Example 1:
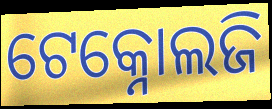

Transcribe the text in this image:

ଟେକ୍ନୋଲଜି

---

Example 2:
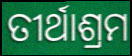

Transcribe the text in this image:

ତୀର୍ଥାଶ୍ରମ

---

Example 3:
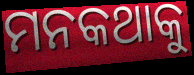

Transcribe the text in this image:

ମନକଥାକୁ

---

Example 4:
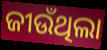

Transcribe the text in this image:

ଜୀଉଁଥିଲା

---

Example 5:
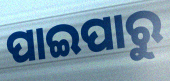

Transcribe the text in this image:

ପାଇପାରୁ